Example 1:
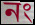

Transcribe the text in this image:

নং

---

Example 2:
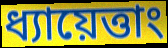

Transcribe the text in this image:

ধ্যায়েত্তাং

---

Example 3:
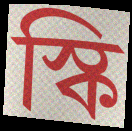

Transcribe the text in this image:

স্কি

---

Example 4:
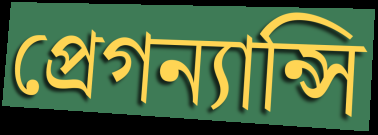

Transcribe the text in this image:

প্রেগন্যান্সি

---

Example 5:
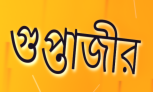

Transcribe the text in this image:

গুপ্তাজীর